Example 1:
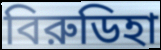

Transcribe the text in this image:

বিরুডিহা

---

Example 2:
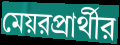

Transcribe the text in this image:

মেয়রপ্রার্থীর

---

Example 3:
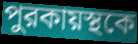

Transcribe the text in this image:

পুরকায়স্থকে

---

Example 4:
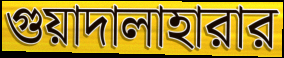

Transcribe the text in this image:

গুয়াদালাহারার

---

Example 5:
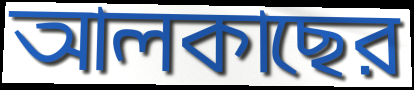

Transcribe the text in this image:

আলকাছের